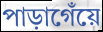
পাড়াগেঁয়ে